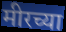
मीरच्या